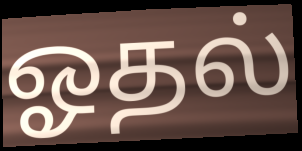
ஓதல்